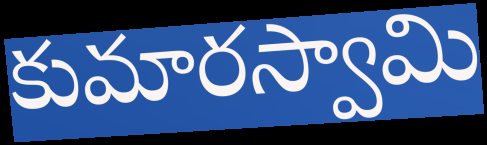
కుమారస్వామి